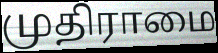
முதிராமை